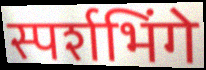
स्पर्शभिंगे